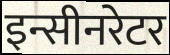
इन्सीनरेटर